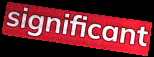
significant